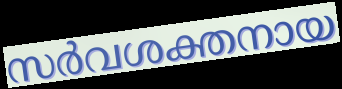
സർവശക്തനായ